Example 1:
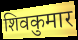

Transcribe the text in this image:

शिवकुमार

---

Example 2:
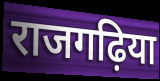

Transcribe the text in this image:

राजगढ़िया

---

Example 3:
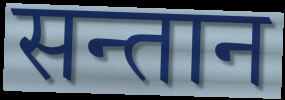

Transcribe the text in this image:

सन्तान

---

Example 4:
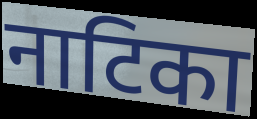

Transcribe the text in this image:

नाटिका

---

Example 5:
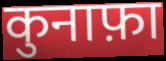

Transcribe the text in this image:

कुनाफ़ा